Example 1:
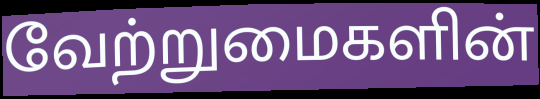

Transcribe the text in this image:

வேற்றுமைகளின்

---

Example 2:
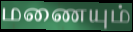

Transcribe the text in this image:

மணையும்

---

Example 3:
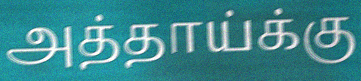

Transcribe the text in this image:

அத்தாய்க்கு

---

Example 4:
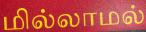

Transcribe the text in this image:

மில்லாமல்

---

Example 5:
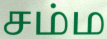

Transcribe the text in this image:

சம்ம